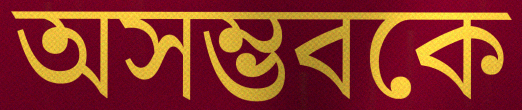
অসম্ভবকে